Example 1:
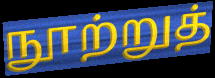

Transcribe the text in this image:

நூற்றுத்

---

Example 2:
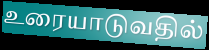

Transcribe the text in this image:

உரையாடுவதில்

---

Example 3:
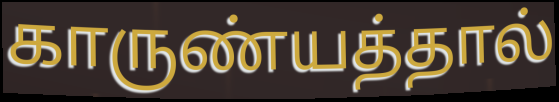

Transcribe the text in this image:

காருண்யத்தால்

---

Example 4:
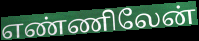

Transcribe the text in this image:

எண்ணிலேன்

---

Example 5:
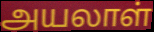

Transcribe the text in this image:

அயலாள்